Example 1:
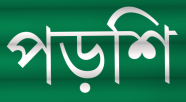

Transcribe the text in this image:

পড়শি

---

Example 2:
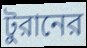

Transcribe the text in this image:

টুরানের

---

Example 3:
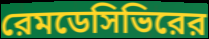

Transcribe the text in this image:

রেমডেসিভিরের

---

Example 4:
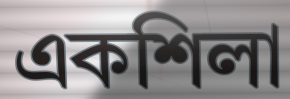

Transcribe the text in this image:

একশিলা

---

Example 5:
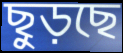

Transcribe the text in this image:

ছুড়ছে